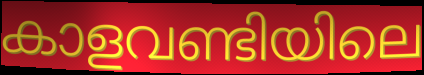
കാളവണ്ടിയിലെ